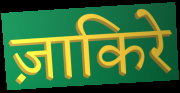
ज़ाकिरे